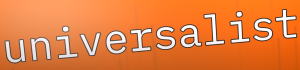
universalist